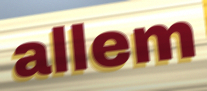
allem